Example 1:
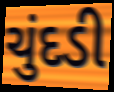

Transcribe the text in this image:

ચુંદડી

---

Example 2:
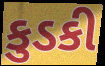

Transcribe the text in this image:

કુડકી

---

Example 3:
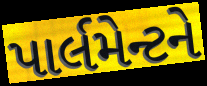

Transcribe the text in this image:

પાર્લમેન્ટને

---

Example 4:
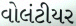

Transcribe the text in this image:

વોલંટીયર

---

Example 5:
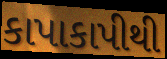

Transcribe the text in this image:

કાપાકાપીથી